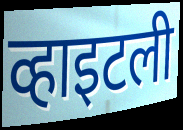
व्हाइटली